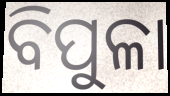
ବିପୁଳା